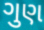
ગુણ